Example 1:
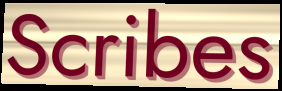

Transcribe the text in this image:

Scribes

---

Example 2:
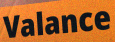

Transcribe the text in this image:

Valance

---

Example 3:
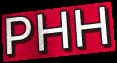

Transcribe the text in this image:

PHH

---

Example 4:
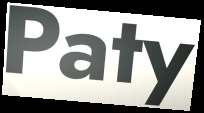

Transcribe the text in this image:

Paty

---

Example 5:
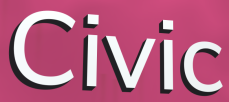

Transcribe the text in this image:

Civic